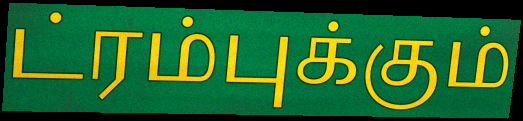
ட்ரம்புக்கும்